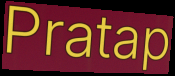
Pratap